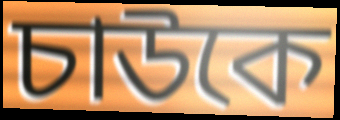
চাউকে